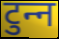
टुन्न